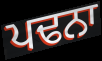
ਪਢਨਾ